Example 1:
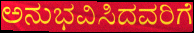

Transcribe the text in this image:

ಅನುಭವಿಸಿದವರಿಗೆ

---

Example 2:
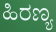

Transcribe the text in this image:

ಹಿರಣ್ಯ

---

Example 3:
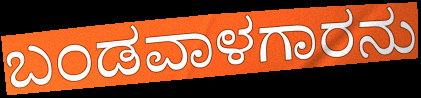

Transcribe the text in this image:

ಬಂಡವಾಳಗಾರನು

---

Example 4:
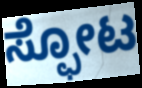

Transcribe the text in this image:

ಸ್ಫೋಟ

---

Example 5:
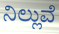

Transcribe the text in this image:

ನಿಲ್ಲುವೆ